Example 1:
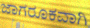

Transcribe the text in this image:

ಜಾಗರೂಕವಾಗಿ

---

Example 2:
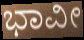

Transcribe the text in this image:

ಭಾವೀ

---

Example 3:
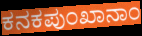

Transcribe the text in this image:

ಕನಕಪುಂಖಾನಾಂ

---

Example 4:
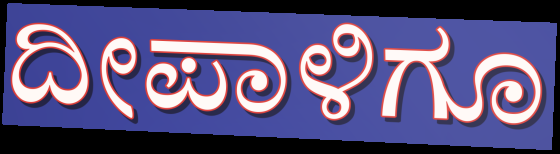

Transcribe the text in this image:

ದೀಪಾಳಿಗೂ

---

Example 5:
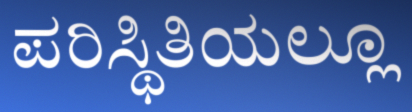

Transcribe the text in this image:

ಪರಿಸ್ಥಿತಿಯಲ್ಲೂ